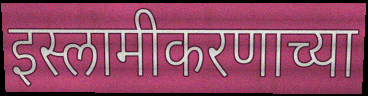
इस्लामीकरणाच्या